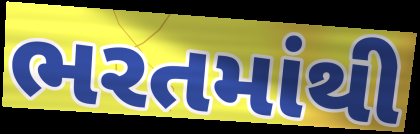
ભરતમાંથી